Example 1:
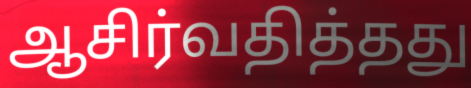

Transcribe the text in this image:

ஆசிர்வதித்தது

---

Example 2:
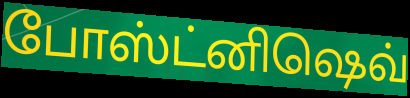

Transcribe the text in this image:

போஸ்ட்னிஷெவ்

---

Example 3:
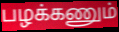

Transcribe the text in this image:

பழக்கணும்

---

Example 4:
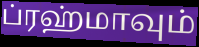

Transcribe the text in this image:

ப்ரஹ்மாவும்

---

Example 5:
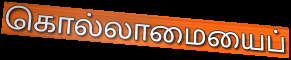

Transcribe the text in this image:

கொல்லாமையைப்